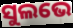
ସୁଲଭେ